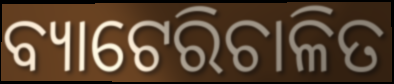
ବ୍ୟାଟେରିଚାଳିତ